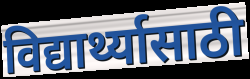
विद्यार्थ्यासाठी